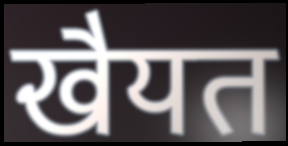
खैयत